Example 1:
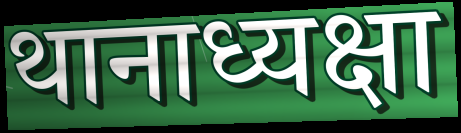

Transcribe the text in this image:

थानाध्यक्षा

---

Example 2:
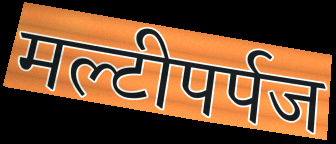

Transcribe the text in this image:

मल्टीपर्पज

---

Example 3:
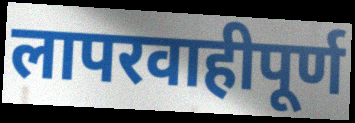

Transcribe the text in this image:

लापरवाहीपूर्ण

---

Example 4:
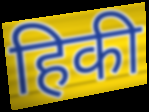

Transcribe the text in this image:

हिकी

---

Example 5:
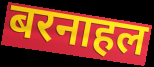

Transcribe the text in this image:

बरनाहल